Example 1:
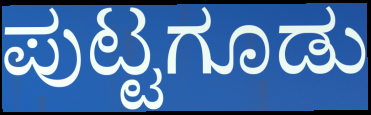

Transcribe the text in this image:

ಪುಟ್ಟಗೂಡು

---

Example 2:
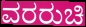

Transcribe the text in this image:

ವರರುಚಿ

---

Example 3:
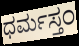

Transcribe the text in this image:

ಧರ್ಮಸ್ತಂ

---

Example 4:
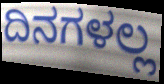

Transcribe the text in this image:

ದಿನಗಳಲ್ಲ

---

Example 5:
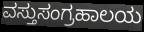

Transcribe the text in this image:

ವಸ್ತುಸಂಗ್ರಹಾಲಯ